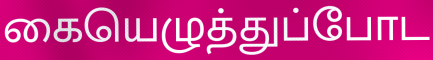
கையெழுத்துப்போட